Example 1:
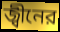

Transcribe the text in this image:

জ্বীনের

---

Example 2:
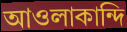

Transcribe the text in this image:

আওলাকান্দি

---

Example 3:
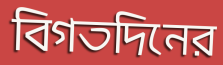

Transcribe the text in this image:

বিগতদিনের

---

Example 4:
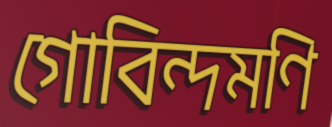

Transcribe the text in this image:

গোবিন্দমণি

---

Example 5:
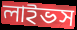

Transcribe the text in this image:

লাইভস